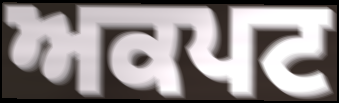
ਅਕਪਟ